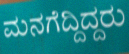
ಮನಗೆದ್ದಿದ್ದರು